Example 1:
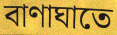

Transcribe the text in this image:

বাণাঘাতে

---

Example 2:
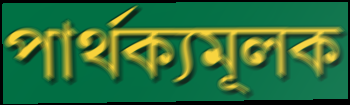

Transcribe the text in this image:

পার্থক্যমূলক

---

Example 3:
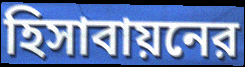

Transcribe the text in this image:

হিসাবায়নের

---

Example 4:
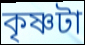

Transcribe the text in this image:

কৃষ্ণটা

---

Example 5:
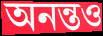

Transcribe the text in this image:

অনন্তও